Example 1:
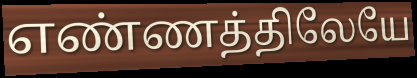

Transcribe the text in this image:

எண்ணத்திலேயே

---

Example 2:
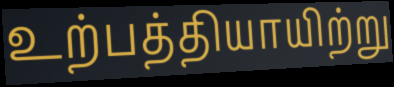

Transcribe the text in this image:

உற்பத்தியாயிற்று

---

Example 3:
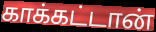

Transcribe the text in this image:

காக்கட்டான்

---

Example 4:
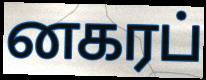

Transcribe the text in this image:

னகரப்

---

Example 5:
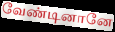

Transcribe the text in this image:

வேண்டினானே